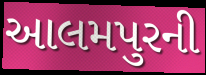
આલમપુરની